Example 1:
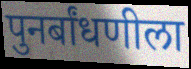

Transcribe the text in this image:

पुनर्बांधणीला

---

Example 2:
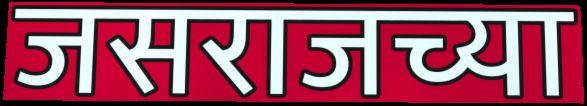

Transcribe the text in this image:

जसराजच्या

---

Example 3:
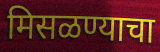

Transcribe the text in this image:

मिसळण्याचा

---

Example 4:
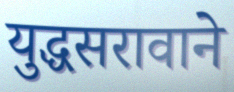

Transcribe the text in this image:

युद्धसरावाने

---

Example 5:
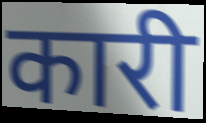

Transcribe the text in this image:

कारी